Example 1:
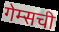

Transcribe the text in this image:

गेम्सची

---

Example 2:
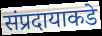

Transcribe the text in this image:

संप्रदायाकडे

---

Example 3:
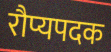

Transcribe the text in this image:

रौप्यपदक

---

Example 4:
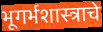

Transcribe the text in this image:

भूगर्भशास्त्राचे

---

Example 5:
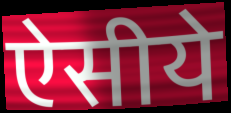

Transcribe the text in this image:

ऐसीये